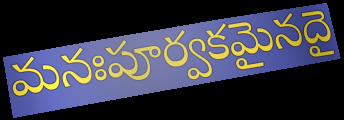
మనఃపూర్వకమైనదై